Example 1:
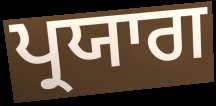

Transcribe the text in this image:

ਪ੍ਰਯਾਗ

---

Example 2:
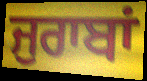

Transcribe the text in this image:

ਜੁਰਾਬਾਂ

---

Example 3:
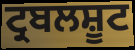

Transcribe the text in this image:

ਟ੍ਰਬਲਸ਼ੂਟ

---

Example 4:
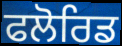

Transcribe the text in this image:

ਫਲੋਰਿਡ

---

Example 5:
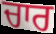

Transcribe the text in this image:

ਚਾਰ